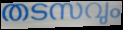
തടസവും